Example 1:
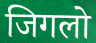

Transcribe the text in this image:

जिगलो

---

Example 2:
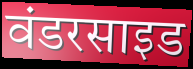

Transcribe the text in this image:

वंडरसाइड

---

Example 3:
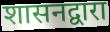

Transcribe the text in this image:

शासनद्वारा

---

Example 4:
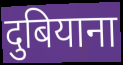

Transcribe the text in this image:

दुबियाना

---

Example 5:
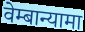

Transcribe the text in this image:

वेम्बान्यामा